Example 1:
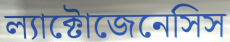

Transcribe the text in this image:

ল্যাক্টোজেনেসিস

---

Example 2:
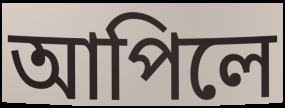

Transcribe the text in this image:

আপিলে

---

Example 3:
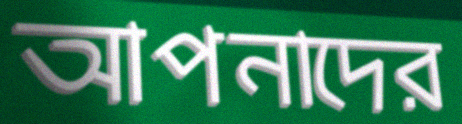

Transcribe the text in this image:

আপনাদের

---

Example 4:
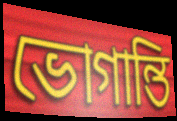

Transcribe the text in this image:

ভোগান্তি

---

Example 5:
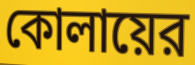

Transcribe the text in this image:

কোলায়ের